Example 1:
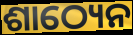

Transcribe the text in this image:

ଶାଠ୍ୟେନ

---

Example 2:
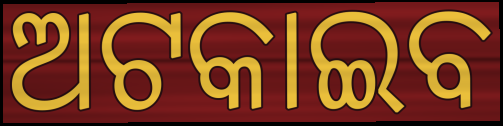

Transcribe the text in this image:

ଅଟକାଇବ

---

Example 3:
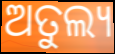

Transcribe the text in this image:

ଅତୁଲ୍ୟ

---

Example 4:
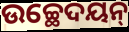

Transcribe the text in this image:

ଉଚ୍ଛେଦୟନ୍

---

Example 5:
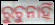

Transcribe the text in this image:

ରୁଚୁନାହିଁ